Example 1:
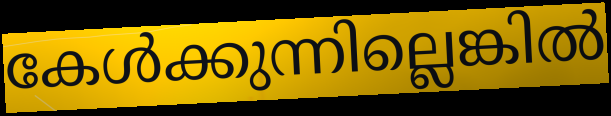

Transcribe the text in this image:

കേൾക്കുന്നില്ലെങ്കിൽ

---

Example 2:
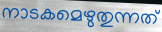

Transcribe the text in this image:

നാടകമെഴുതുന്നത്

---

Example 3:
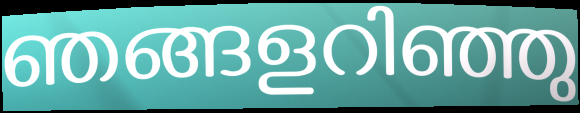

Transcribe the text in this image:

ഞങ്ങളറിഞ്ഞു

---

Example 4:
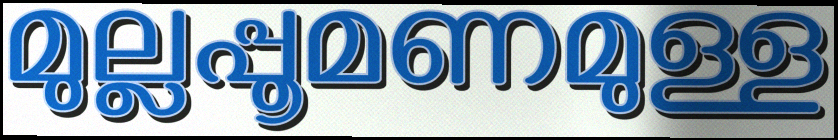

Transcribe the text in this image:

മുല്ലപ്പൂമണമുള്ള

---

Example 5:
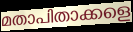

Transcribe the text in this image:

മതാപിതാക്കളെ